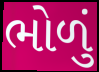
ભોળું